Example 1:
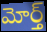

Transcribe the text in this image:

మోర్త్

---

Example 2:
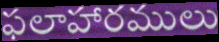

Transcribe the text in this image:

ఫలాహారములు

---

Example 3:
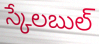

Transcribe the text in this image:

స్కేలబుల్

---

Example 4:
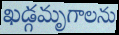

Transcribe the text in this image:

ఖడ్గమృగాలను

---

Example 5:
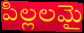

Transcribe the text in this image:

పిల్లలమై